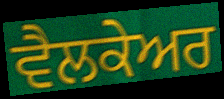
ਵੈਲਕੇਅਰ